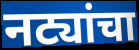
नट्यांचा